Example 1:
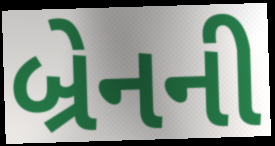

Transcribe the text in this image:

બ્રેનની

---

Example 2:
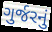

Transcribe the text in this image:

ગુર્જરનું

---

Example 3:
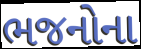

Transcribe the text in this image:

ભજનોના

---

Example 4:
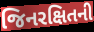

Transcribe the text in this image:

જિનરક્ષિતની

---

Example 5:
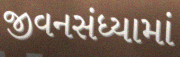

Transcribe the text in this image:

જીવનસંધ્યામાં